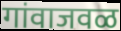
गांवाजवळ